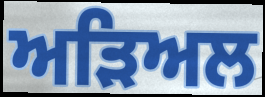
ਅੜਿਅਲ